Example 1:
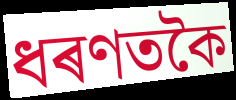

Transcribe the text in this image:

ধৰণতকৈ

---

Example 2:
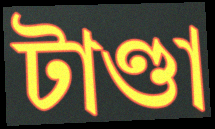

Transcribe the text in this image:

টাণ্ডা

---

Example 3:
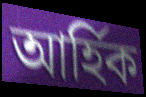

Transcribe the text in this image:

আৰ্হিক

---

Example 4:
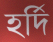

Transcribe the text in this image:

হৰ্দি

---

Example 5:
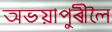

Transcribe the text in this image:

অভয়াপুৰীলৈ